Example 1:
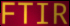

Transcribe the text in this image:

FTIR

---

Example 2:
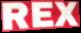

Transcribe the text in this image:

REX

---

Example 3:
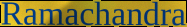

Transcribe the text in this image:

Ramachandra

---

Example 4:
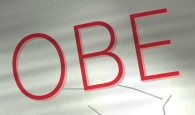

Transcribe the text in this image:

OBE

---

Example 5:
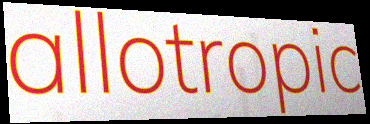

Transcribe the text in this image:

allotropic